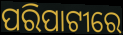
ପରିପାଟୀରେ